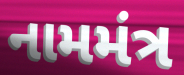
નામમંત્ર